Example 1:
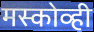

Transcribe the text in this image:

मस्कोव्ही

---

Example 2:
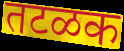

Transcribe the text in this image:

तटळक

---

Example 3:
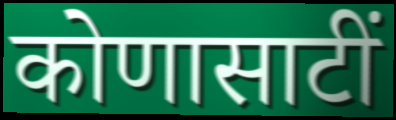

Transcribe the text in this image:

कोणासाटीं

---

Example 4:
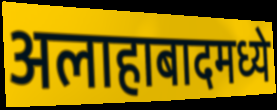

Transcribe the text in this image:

अलाहाबादमध्ये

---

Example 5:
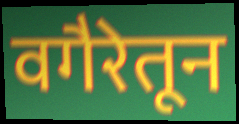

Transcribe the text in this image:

वगैरेतून